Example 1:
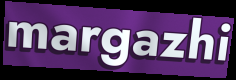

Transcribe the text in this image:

margazhi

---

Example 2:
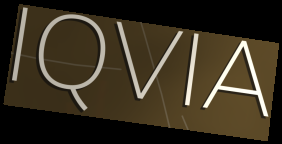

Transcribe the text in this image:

IQVIA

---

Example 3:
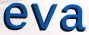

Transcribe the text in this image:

eva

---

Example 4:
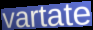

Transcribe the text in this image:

vartate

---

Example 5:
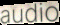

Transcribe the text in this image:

audio